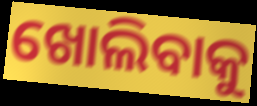
ଖୋଲିବାକୁ